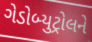
ગેડોબ્યુટ્રોલને